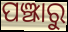
ପଞ୍ଝାରୁ